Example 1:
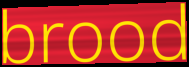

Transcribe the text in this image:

brood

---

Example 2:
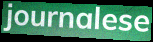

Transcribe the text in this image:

journalese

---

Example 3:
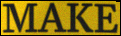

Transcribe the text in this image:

MAKE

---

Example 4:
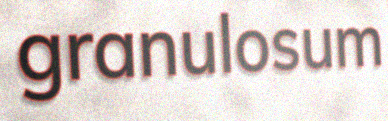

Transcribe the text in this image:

granulosum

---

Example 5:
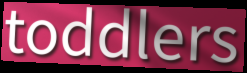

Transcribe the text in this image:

toddlers